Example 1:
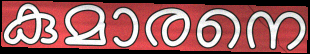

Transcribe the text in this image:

കുമാരനെ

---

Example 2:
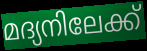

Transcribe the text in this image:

മദ്യനിലേക്ക്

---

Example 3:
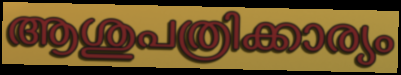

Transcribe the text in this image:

ആശുപത്രിക്കാര്യം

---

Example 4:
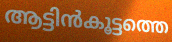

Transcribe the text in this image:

ആട്ടിൻകൂട്ടത്തെ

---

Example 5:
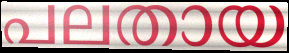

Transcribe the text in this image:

പലതായ